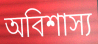
অবিশাস্য